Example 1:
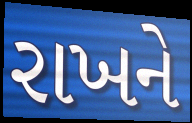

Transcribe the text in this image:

રાખને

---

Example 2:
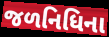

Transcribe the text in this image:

જળનિધિના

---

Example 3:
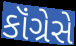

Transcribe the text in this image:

કૉંગ્રેસે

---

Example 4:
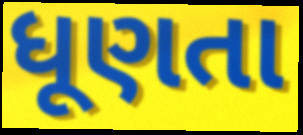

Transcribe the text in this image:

ધૂણતા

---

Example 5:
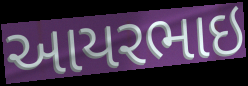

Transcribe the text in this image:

આયરભાઇ